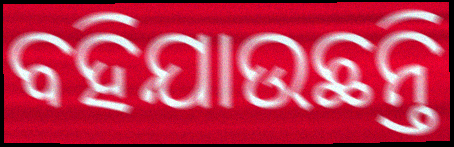
ବହିଯାଉଛନ୍ତି